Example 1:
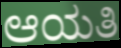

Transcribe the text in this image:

ಆಯತಿ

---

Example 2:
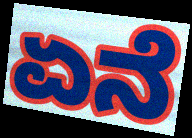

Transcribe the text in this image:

ಏನೆ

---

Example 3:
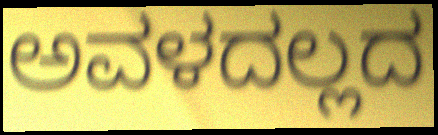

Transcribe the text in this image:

ಅವಳದಲ್ಲದ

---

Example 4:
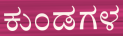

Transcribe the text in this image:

ಕುಂಡಗಳ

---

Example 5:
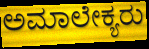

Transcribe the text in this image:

ಅಮಾಲೇಕ್ಯರು